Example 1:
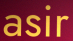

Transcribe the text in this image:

asir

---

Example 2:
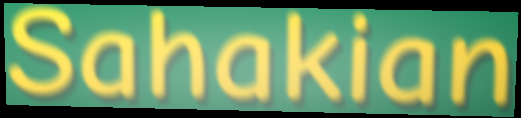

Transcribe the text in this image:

Sahakian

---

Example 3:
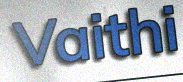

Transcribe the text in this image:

Vaithi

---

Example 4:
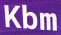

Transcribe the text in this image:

Kbm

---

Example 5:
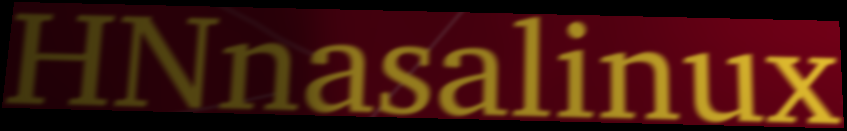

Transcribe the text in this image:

HNnasalinux